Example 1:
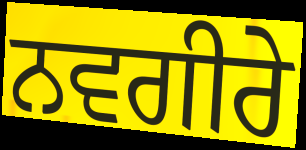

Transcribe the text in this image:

ਨਵਗੀਰੇ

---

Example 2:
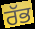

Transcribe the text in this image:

ਰੱਭ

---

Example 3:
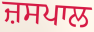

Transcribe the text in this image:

ਜ਼ਸਪਾਲ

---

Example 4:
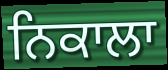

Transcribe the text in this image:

ਨਿਕਾਲਾ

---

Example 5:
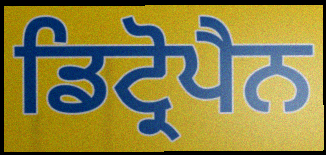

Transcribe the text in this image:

ਡਿਟ੍ਰੋਪੈਨ